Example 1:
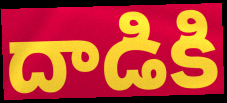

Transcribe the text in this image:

దాడికి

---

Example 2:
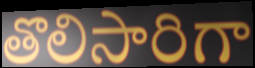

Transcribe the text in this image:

తొలిసారిగా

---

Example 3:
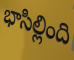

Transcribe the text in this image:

భాసిల్లింది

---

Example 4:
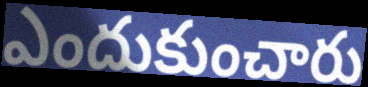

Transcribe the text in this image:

ఎందుకుంచారు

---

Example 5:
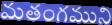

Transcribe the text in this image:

మతంగముని